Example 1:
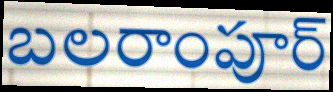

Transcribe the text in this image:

బలరాంపూర్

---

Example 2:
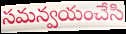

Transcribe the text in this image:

సమన్వయంచేసి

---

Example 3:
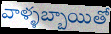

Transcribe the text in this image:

వాళ్ళబ్బాయితో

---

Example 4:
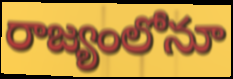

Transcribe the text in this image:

రాజ్యంలోనూ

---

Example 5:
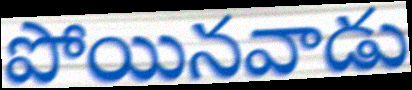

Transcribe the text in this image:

పోయినవాడు